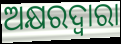
ଅକ୍ଷରଦ୍ଵାରା